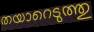
തയാറെടുത്തു